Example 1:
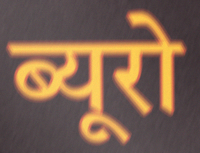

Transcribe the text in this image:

ब्यूरो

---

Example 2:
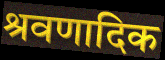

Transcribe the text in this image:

श्रवणादिक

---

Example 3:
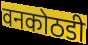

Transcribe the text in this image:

वनकोठडी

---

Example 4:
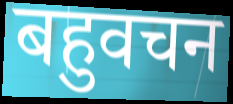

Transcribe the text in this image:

बहुवचन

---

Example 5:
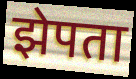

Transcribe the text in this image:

झेपता